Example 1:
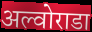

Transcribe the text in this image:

अल्वोराडा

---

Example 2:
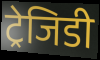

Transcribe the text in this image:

ट्रेजिडी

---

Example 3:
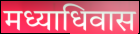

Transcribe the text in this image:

मध्याधिवास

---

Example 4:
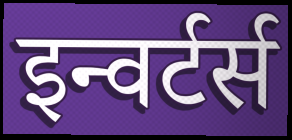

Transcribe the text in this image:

इन्वर्टर्स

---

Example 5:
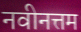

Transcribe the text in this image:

नवीनत्तम